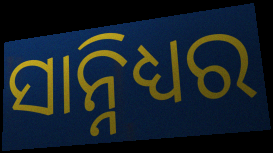
ସାନ୍ନିଧ୍ୟର